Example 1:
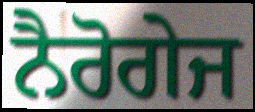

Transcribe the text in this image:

ਨੈਰੋਗੇਜ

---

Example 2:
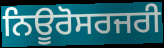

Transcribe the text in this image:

ਨਿਊਰੋਸਰਜਰੀ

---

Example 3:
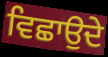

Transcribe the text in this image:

ਵਿਛਾਉਦੇ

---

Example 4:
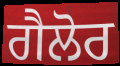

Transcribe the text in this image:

ਗੈਲੋਰ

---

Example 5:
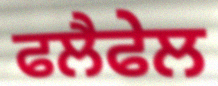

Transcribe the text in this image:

ਫਲੈਫੇਲ